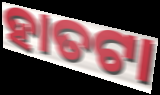
ହାତଟା